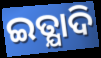
ଇତ୍ଯାଦି